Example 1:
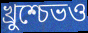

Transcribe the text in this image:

খ্রুশ্চেভও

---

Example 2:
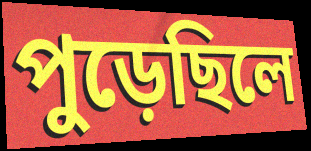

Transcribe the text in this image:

পুড়েছিলে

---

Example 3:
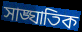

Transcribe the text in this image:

সাঙ্ঘাতিক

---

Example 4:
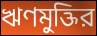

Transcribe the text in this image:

ঋণমুক্তির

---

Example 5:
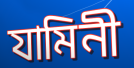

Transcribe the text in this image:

যামিনী